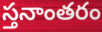
స్తనాంతరం